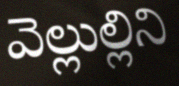
వెల్లుల్లిని